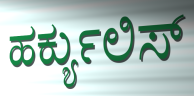
ಹರ್ಕ್ಯುಲಿಸ್